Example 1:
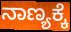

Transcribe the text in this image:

ನಾಣ್ಯಕ್ಕೆ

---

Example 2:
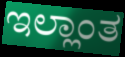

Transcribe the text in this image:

ಇಲ್ಲಾಂತ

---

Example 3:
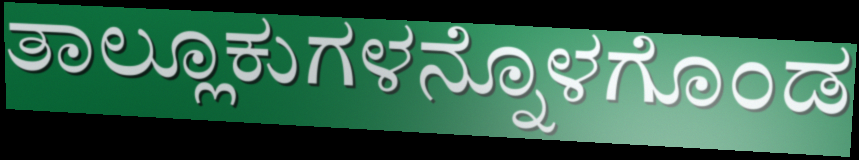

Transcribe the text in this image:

ತಾಲ್ಲೂಕುಗಳನ್ನೊಳಗೊಂಡ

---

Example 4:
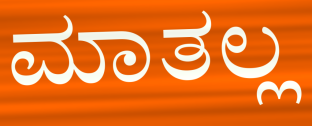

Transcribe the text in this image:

ಮಾತಲ್ಲ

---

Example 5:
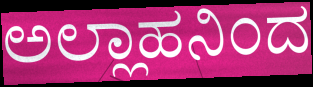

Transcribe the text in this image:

ಅಲ್ಲಾಹನಿಂದ